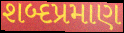
શબ્દપ્રમાણ